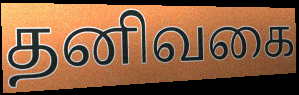
தனிவகை